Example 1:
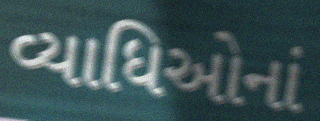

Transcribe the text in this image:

વ્યાધિઓનાં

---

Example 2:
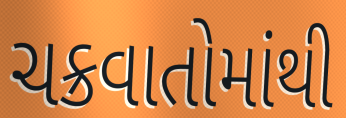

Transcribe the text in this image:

ચક્રવાતોમાંથી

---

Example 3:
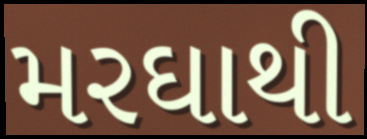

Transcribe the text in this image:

મરઘાથી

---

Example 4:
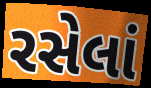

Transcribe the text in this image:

રસેલાં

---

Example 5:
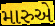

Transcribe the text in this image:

મારુએ